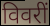
विवरीं